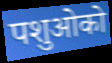
पशुओको